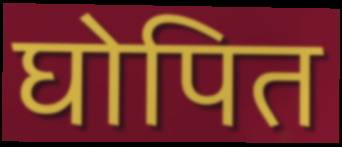
घोपित